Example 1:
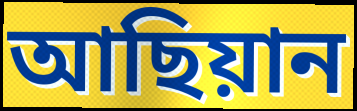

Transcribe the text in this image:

আছিয়ান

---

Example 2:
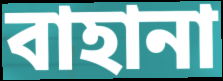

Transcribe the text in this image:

বাহানা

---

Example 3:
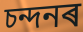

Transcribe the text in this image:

চন্দনৰ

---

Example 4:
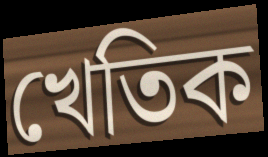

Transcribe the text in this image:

খেতিক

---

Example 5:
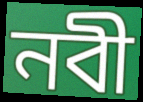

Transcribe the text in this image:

নবী